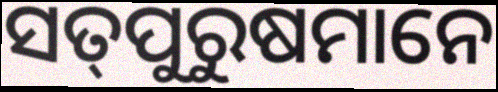
ସତ୍‌ପୁରୁଷମାନେ